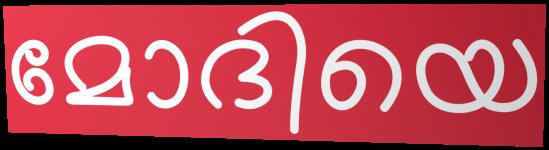
മോദിയെ